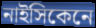
নাইসিকেনে